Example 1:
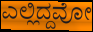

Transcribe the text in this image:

ಎಲ್ಲಿದ್ದವೋ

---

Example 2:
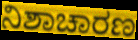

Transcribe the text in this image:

ನಿಶಾಚಾರಣ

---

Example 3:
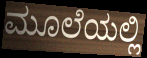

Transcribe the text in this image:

ಮೂಲೆಯಲ್ಲಿ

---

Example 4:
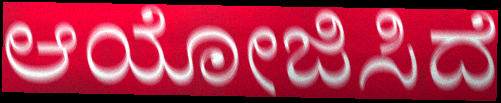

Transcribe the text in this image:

ಆಯೋಜಿಸಿದೆ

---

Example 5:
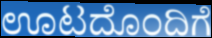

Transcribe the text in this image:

ಊಟದೊಂದಿಗೆ